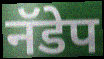
नॅडेप